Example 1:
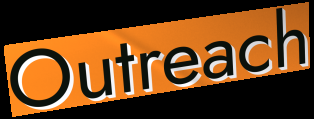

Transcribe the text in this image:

Outreach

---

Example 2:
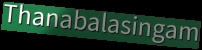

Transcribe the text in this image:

Thanabalasingam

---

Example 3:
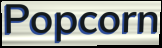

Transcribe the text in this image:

Popcorn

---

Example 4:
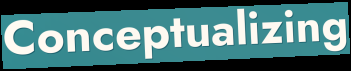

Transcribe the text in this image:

Conceptualizing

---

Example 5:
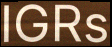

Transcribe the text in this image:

IGRs